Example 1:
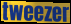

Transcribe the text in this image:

tweezer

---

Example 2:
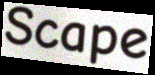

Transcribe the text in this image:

Scape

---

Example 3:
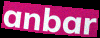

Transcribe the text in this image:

anbar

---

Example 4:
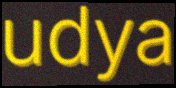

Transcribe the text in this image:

udya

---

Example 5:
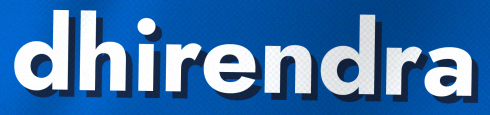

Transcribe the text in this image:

dhirendra